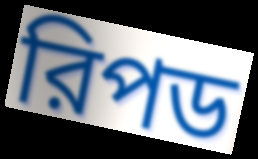
রিপড